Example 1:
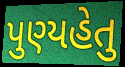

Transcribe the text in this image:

પુણ્યહેતુ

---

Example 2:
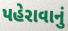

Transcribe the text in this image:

પહેરાવાનું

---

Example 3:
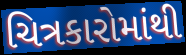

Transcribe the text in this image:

ચિત્રકારોમાંથી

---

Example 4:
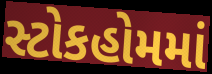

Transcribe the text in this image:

સ્ટોકહોમમાં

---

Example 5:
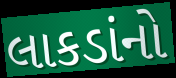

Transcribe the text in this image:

લાકડાંનો